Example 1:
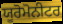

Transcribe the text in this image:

ਯੂਰੋਮੋਨੀਟਰ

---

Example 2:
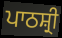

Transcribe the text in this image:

ਪਾਠਸ਼੍ਰੀ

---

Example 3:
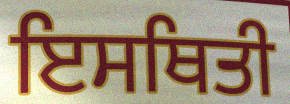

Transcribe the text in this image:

ਇਸਥਿਤੀ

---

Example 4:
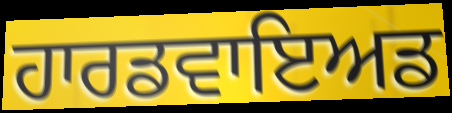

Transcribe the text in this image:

ਹਾਰਡਵਾਇਅਡ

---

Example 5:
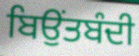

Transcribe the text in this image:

ਬਿਉਂਤਬੰਦੀ